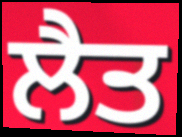
ਲੈਤ